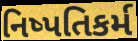
નિષ્પતિકર્મ